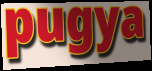
pugya